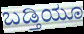
ಬಡ್ತಿಯೂ